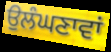
ਉਲੰਘਣਾਵਾਂ